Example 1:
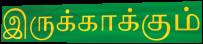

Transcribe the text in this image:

இருக்காக்கும்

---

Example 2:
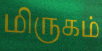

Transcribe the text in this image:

மிருகம்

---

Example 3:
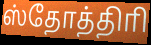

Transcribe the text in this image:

ஸ்தோத்திரி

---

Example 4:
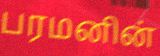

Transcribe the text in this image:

பரமனின்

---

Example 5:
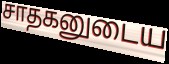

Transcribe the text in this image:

சாதகனுடைய